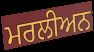
ਮਰਲੀਅਨ